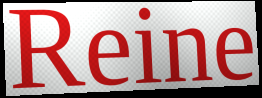
Reine